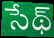
సేథ్